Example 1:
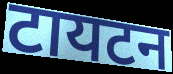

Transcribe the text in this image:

टायटन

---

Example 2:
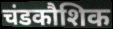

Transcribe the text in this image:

चंडकौशिक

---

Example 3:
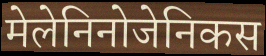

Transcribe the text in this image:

मेलेनिनोजेनिकस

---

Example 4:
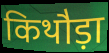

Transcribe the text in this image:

किथौड़ा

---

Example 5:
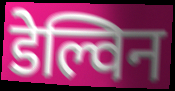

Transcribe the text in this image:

डेल्विन